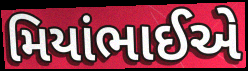
મિયાંભાઈએ